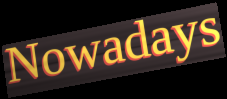
Nowadays